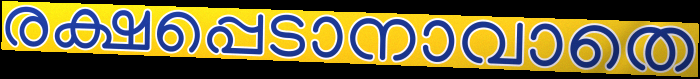
രക്ഷപ്പെടാനാവാതെ